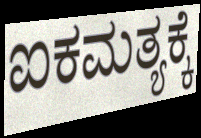
ಐಕಮತ್ಯಕ್ಕೆ